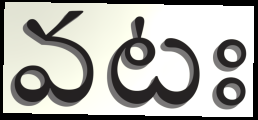
వటః